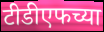
टीडीएफच्या